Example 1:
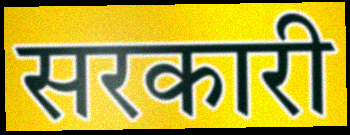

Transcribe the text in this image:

सरकारी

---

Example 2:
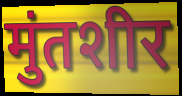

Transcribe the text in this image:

मुंतशीर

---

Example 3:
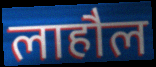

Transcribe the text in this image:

लाहौल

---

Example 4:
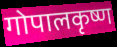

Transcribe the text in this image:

गोपालकृष्‍ण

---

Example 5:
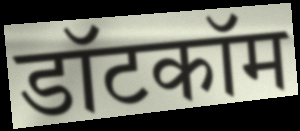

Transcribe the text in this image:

डॉटकॉम